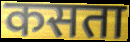
कसता